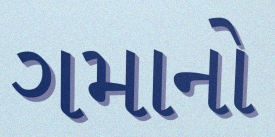
ગમાનો